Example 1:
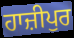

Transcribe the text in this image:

ਹਾਜ਼ੀਪੁਰ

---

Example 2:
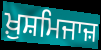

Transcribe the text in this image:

ਖ਼ੁਸ਼ਮਿਜਾਜ਼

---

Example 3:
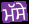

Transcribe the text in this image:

ਮੱਸੇ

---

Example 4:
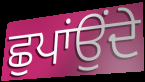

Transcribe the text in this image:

ਛੁਪਾਂਉਂਦੇ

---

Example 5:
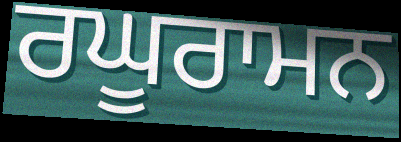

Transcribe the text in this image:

ਰਘੂਰਾਮਨ